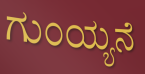
ಗುಂಯ್ಯನೆ